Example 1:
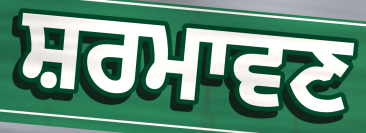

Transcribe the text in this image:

ਸ਼ਰਮਾਵਣ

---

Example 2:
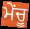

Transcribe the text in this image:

ਮੇਂਚੂ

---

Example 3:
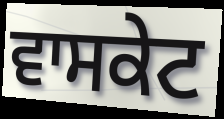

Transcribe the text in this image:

ਵਾਸਕੇਟ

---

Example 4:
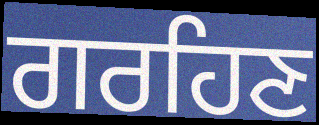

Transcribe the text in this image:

ਗਰਹਿਣ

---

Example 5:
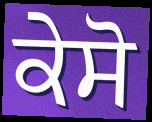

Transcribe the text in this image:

ਕੇਸੋ